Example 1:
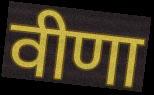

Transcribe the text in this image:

वीणा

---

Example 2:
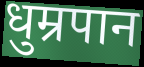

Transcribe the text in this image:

धुम्रपान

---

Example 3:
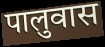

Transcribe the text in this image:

पालुवास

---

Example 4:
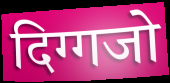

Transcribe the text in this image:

दिग्गजो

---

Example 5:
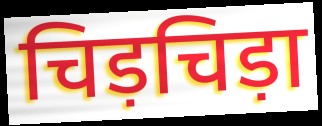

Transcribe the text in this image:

चिड़चिड़ा